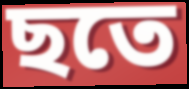
ছতে